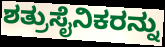
ಶತ್ರುಸೈನಿಕರನ್ನು